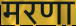
मरणा